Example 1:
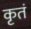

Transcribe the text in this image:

कृतं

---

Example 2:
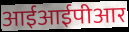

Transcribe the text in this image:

आईआईपीआर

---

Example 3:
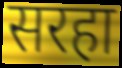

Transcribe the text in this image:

सरहा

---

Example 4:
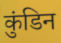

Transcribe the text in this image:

कुंडिन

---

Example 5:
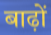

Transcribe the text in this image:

बाढ़ों